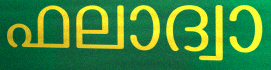
ഫലാദ്വാ